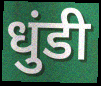
धुंडी